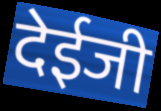
देईजी